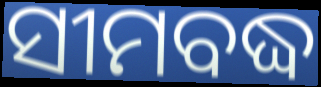
ସୀମବଦ୍ଧ